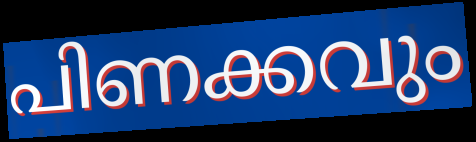
പിണക്കവും